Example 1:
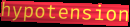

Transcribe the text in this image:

hypotension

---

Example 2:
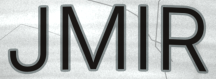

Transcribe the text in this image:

JMIR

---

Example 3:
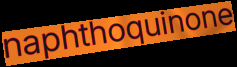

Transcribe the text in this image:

naphthoquinone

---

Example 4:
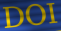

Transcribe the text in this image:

DOI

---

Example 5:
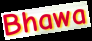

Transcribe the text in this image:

Bhawa